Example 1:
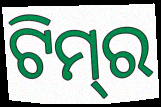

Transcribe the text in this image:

ଟିମ୍‌ର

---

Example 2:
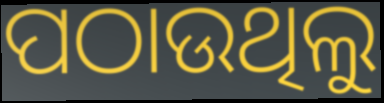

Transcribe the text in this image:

ପଠାଉଥିଲୁ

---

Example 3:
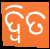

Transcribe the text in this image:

ଦ୍ୱିତ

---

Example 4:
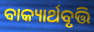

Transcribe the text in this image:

ବାକ୍ୟାର୍ଥବୃତ୍ତି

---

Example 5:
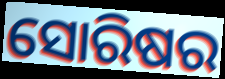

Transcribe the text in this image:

ସୋରିଷର